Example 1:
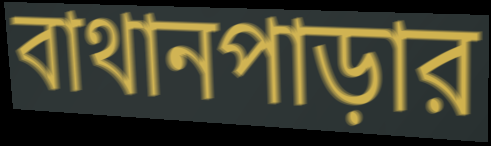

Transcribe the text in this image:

বাথানপাড়ার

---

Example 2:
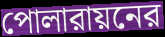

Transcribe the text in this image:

পোলারায়নের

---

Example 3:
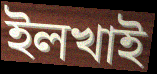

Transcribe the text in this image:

ইলখাই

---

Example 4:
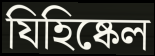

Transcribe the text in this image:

যিহিষ্কেল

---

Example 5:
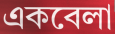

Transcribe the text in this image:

একবেলা